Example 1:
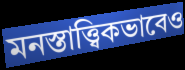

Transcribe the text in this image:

মনস্তাত্ত্বিকভাবেও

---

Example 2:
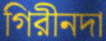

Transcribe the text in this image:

গিরীনদা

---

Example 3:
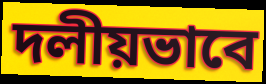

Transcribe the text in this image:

দলীয়ভাবে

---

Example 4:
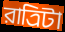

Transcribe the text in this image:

রাত্রিটা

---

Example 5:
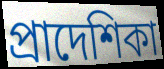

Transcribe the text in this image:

প্রাদেশিকা